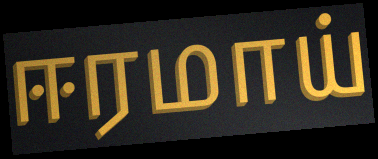
ஈரமாய்